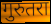
गुरुतरा